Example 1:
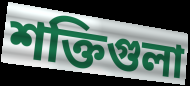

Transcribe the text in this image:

শক্তিগুলা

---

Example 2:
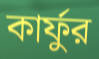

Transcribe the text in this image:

কার্ফুর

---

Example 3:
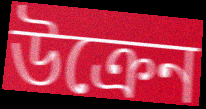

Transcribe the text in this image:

উক্রেন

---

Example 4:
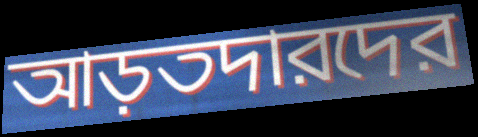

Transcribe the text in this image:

আড়তদারদের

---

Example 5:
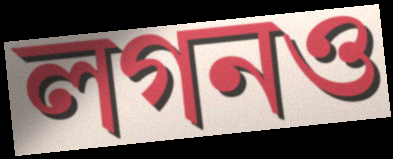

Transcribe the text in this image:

লগনও